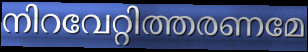
നിറവേറ്റിത്തരണമേ